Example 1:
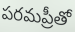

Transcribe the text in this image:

పరమప్రీతో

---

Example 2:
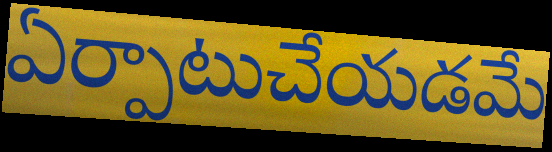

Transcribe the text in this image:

ఏర్పాటుచేయడమే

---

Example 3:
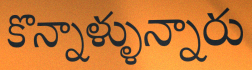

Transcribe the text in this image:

కొన్నాళ్ళున్నారు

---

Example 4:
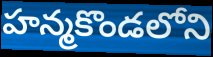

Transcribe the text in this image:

హన్మకొండలోని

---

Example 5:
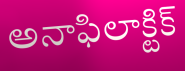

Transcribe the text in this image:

అనాఫిలాక్టిక్